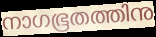
നാഗഭൂതത്തിനു